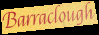
Barraclough